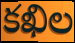
కఖిల